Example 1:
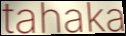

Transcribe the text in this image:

tahaka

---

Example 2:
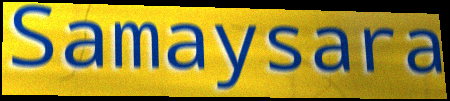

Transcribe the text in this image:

Samaysara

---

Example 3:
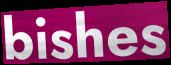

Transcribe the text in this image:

bishes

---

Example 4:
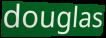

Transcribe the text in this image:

douglas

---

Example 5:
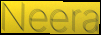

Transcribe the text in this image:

Neera